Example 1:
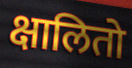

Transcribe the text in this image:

क्षालितो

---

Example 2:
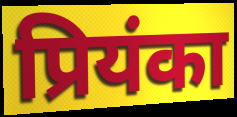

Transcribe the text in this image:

प्रियंका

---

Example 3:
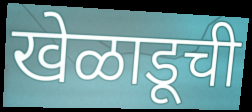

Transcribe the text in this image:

खेळाडूची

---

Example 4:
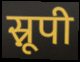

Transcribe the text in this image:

स्नूपी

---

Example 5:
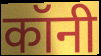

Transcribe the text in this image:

कॉनी